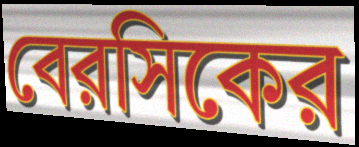
বেরসিকের